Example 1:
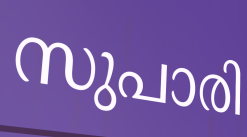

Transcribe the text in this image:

സുപാരി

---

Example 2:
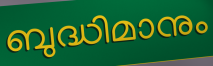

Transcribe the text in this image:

ബുദ്ധിമാനും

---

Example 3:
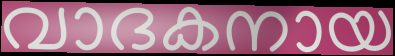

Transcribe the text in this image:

വാദകനായ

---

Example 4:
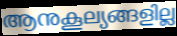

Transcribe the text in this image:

ആനുകൂല്യങ്ങളില്ല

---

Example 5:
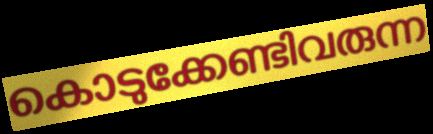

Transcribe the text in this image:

കൊടുക്കേണ്ടിവരുന്ന